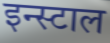
इन्स्टाल